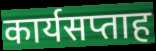
कार्यसप्ताह